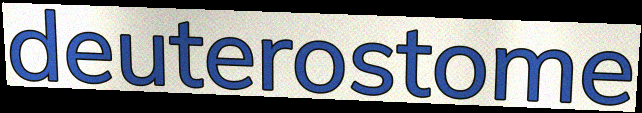
deuterostome